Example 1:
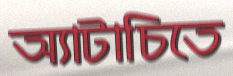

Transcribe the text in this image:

অ্যাটাচিতে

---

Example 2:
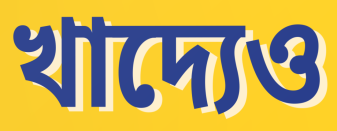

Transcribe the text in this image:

খাদ্যেও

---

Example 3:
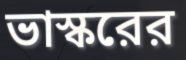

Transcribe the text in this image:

ভাস্করের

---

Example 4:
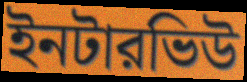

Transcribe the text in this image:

ইনটারভিউ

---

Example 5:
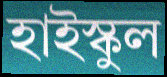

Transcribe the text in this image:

হাইস্কুল